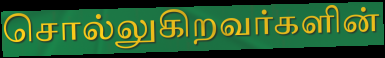
சொல்லுகிறவர்களின்